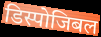
डिस्पोजिबल